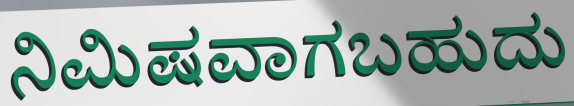
ನಿಮಿಷವಾಗಬಹುದು